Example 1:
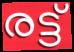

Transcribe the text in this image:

രട്ട്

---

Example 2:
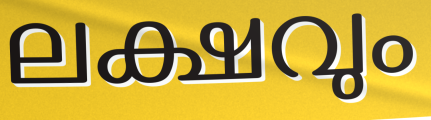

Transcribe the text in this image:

ലക്ഷവും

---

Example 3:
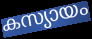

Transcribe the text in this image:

കസ്യായം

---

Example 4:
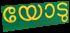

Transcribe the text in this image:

യോടു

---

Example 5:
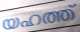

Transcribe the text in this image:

യഹത്ത്